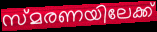
സ്മരണയിലേക്ക്